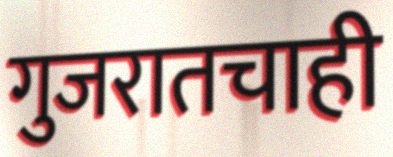
गुजरातचाही